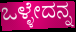
ಒಳ್ಳೇದನ್ನ